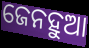
ଜେନହୁଆ